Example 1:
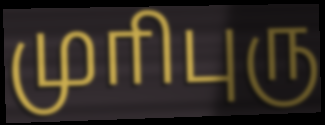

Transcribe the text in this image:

முரிபுரு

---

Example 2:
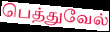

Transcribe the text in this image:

பெத்துவேல்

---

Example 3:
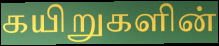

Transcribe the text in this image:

கயிறுகளின்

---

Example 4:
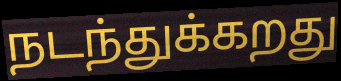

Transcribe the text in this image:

நடந்துக்கறது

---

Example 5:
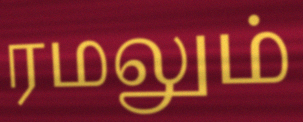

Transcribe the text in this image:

ரமலும்